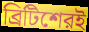
ব্রিটিশেরই